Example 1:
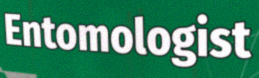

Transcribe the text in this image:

Entomologist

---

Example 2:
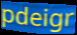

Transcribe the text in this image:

pdeigr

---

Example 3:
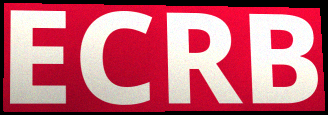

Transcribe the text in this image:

ECRB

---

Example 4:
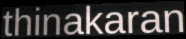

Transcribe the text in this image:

thinakaran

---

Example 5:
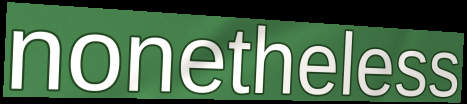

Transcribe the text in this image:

nonetheless